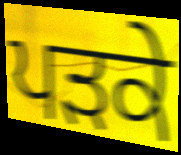
ਪੜਕੇ